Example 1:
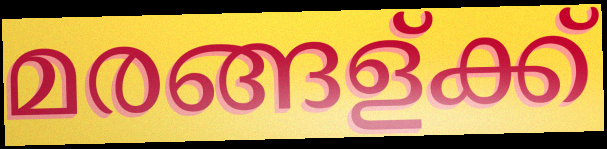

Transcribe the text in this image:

മരങ്ങള്ക്ക്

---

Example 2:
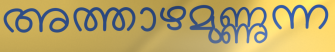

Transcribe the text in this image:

അത്താഴമുണ്ണുന്ന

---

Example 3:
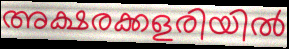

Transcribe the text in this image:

അക്ഷരക്കളരിയിൽ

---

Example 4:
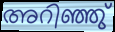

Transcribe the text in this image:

അറിഞ്ഞു്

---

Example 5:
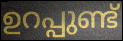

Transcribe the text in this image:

ഉറപ്പുണ്ട്